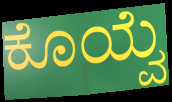
ಕೊಯ್ವೆ